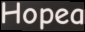
Hopea